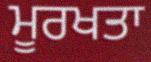
ਮੂਰਖਤਾ